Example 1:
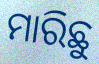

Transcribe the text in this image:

ମାରିଛୁ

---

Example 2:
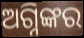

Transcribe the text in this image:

ଅଗ୍ନିଙ୍କର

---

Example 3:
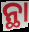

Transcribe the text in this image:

ନ୍ଥା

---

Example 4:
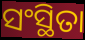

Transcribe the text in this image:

ସଂସ୍ଥିତା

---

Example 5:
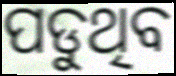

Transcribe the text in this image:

ପଡୁଥିବ